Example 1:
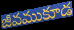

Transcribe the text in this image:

జీవముకూడ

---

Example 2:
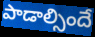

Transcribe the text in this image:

పాడాల్సిందే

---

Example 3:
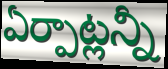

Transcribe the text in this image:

ఏర్పాట్లన్నీ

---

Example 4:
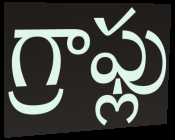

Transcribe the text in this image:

గ్రాఫ్లు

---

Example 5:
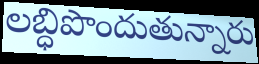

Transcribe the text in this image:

లబ్ధిపొందుతున్నారు